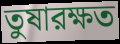
তুষারক্ষত